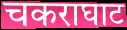
चकराघाट